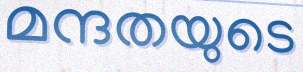
മന്ദതയുടെ